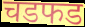
चडफड